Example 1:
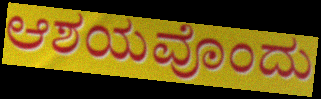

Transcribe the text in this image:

ಆಶಯವೊಂದು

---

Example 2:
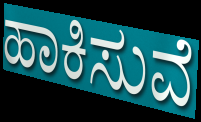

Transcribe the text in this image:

ಹಾಕಿಸುವೆ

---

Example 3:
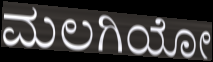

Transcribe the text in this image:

ಮಲಗಿಯೋ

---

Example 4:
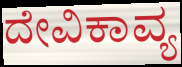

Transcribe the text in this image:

ದೇವಿಕಾವ್ಯ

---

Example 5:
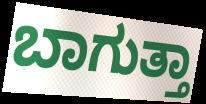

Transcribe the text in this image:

ಬಾಗುತ್ತಾ